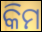
କିମ